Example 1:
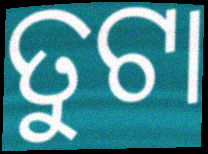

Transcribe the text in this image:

ତୁଟା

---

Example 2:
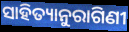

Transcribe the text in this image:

ସାହିତ୍ୟାନୁରାଗିଣୀ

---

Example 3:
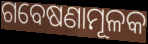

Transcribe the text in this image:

ଗବେଷଣାମୂଳକ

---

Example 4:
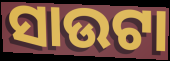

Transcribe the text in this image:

ସାଉଟା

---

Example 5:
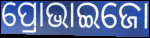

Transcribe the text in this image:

ପ୍ରୋଭାଇଜୋ